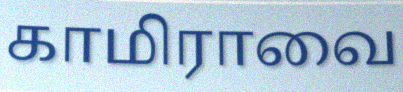
காமிராவை